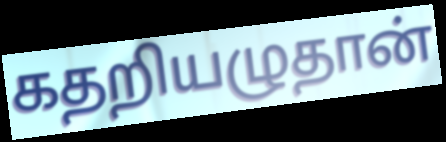
கதறியழுதான்